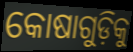
କୋଷାଗୁଡ଼ିକୁ